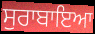
ਸੁਰਾਬਾਇਆ